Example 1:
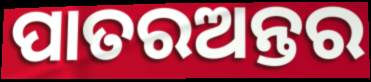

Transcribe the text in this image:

ପାତରଅନ୍ତର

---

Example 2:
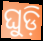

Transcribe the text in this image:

ଘୁଡ଼ି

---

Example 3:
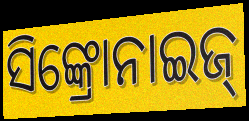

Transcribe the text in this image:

ସିଙ୍କ୍ରୋନାଇଜ୍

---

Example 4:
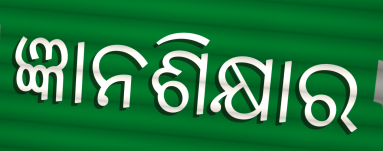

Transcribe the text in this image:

ଜ୍ଞାନଶିକ୍ଷାର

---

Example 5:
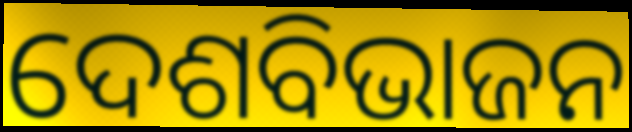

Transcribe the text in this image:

ଦେଶବିଭାଜନ